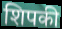
शिपकी